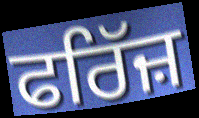
ਫਰਿੱਜ਼